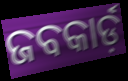
ଜବକାର୍ଡ଼